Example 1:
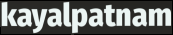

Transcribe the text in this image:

kayalpatnam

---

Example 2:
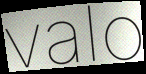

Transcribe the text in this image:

valo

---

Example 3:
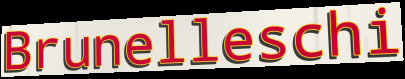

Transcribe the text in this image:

Brunelleschi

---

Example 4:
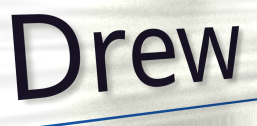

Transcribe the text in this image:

Drew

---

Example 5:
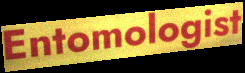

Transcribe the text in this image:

Entomologist